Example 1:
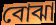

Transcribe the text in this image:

বোঝা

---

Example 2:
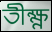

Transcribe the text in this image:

তীক্ষ্ণ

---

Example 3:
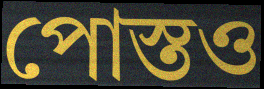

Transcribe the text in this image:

পোস্তও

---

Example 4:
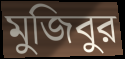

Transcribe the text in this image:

মুজিবুর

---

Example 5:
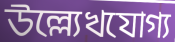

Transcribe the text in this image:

উল্ল্যেখযোগ্য